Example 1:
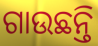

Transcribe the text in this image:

ଗାଉଛନ୍ତି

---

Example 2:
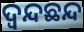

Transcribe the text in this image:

ଦ୍ୱନ୍ଦଛନ୍ଦ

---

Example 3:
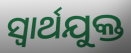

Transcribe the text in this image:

ସ୍ୱାର୍ଥଯୁକ୍ତ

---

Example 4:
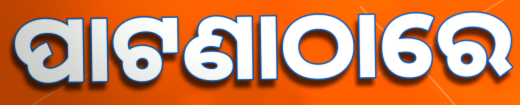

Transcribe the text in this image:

ପାଟଣାଠାରେ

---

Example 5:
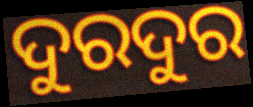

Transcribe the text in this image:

ଦୁରଦୁର